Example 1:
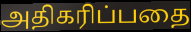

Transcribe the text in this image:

அதிகரிப்பதை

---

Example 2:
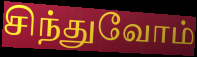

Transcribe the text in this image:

சிந்துவோம்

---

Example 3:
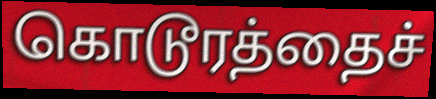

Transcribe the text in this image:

கொடூரத்தைச்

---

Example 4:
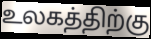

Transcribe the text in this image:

உலகத்திற்கு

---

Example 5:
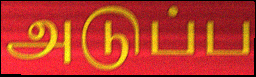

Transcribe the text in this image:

அடுப்ப